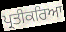
ਪ੍ਰਤੀਕਰਿਆ